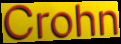
Crohn